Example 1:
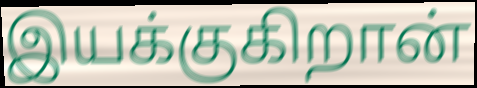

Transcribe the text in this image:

இயக்குகிறான்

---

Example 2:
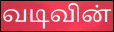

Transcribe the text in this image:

வடிவின்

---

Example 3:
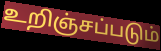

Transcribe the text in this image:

உறிஞ்சப்படும்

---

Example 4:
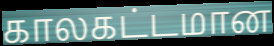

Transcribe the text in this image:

காலகட்டமான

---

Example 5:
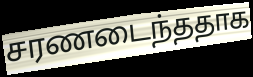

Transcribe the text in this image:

சரணடைந்ததாக